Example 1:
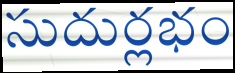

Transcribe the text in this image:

సుదుర్లభం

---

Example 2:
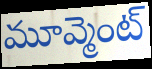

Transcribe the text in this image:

మూవ్మెంట్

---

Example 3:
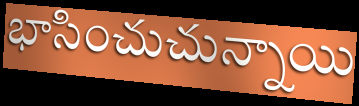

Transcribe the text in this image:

భాసించుచున్నాయి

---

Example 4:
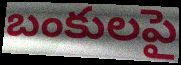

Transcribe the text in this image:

బంకులపై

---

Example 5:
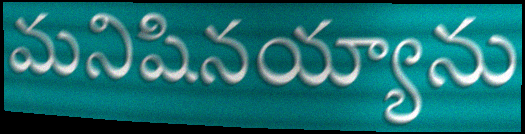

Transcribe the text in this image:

మనిషినయ్యాను